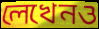
লেখেনও